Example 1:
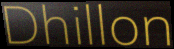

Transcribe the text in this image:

Dhillon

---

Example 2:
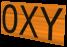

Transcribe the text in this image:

OXY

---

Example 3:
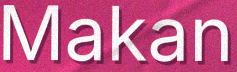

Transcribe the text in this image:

Makan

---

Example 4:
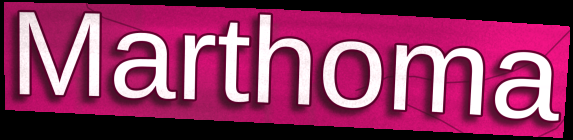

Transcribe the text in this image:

Marthoma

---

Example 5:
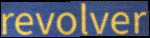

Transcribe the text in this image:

revolver